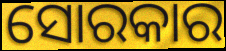
ସୋରକାର